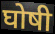
घोषी